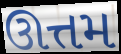
ઊત્તમ